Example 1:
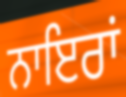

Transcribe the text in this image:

ਨਾਇਰਾਂ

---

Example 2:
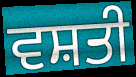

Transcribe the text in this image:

ਵਸ਼ਤੀ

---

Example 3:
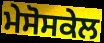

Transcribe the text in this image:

ਮੇਸੋਸਕੇਲ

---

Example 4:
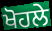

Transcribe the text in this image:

ਖੋਹਲੇ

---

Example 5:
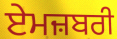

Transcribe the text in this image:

ਏਮਜ਼ਬਰੀ